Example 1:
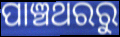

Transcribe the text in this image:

ପାଞ୍ଚଥରରୁ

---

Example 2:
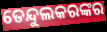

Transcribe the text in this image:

ତେନ୍ଦୁଲକରଙ୍କର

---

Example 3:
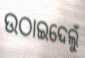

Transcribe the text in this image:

ଉଠାଇଦେଲୁଁ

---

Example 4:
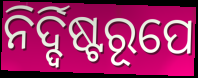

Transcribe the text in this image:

ନିର୍ଦ୍ଦିଷ୍ଟରୂପେ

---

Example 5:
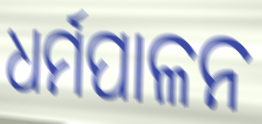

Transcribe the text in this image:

ଧର୍ମପାଳନ